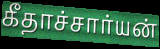
கீதாச்சார்யன்